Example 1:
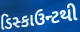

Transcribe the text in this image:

ડિસ્કાઉન્ટથી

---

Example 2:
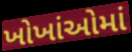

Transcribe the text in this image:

ખોખાંઓમાં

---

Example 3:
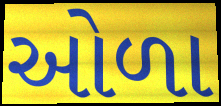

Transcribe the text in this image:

ઓળા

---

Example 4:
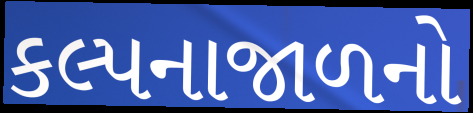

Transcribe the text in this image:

કલ્પનાજાળનો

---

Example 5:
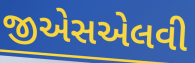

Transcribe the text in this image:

જીએસએલવી